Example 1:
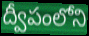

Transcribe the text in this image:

ద్వీపంలోని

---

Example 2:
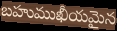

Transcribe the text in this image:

బహుముఖీయమైన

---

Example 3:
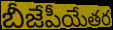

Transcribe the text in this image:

బీజేపీయేతర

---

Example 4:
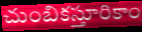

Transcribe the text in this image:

చుంబికస్తూరికాం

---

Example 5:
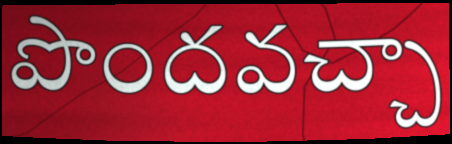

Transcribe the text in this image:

పొందవచ్చా